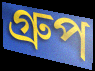
গ্রুপ